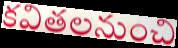
కవితలనుంచి